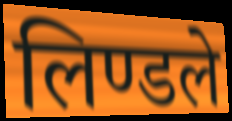
लिण्डले